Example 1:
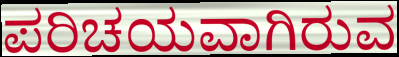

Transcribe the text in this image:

ಪರಿಚಯವಾಗಿರುವ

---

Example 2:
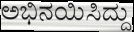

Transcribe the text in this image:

ಅಭಿನಯಿಸಿದ್ದು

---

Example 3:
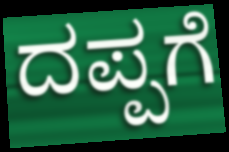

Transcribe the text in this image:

ದಪ್ಪಗೆ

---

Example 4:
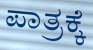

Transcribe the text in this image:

ಪಾತ್ರಕ್ಕೆ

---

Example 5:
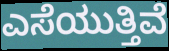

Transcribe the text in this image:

ಎಸೆಯುತ್ತಿವೆ